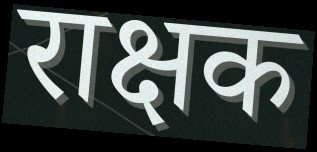
राक्षक